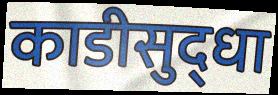
काडीसुद्धा